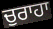
ਚੁਰਾਹਾ